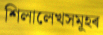
শিলালেখসমূহৰ